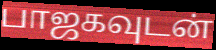
பாஜகவுடன்